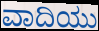
ವಾದಿಯು